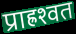
प्राह्रश्वत